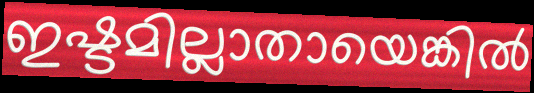
ഇഷ്ടമില്ലാതായെങ്കിൽ